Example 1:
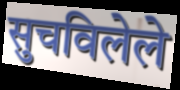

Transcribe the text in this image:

सुचविलेले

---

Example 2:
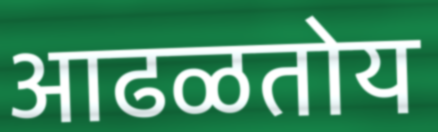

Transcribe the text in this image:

आढळतोय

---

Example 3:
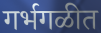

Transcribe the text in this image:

गर्भगळीत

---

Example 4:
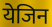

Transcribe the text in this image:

येजिन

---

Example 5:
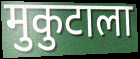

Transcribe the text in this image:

मुकुटाला